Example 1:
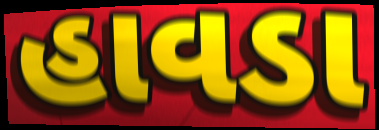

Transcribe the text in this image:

હાવડા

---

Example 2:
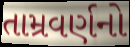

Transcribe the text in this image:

તામ્રવર્ણનો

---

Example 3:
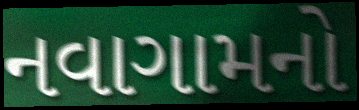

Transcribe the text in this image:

નવાગામનો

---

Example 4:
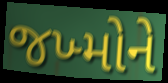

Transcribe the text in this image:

જખ્મોને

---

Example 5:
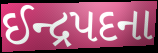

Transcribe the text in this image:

ઈન્દ્રપદના